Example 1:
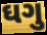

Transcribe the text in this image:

ઘગુ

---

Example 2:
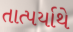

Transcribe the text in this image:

તાત્પર્યાથે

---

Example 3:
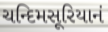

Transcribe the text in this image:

ચન્દિમસૂરિયાનં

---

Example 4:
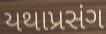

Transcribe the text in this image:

યથાપ્રસંગ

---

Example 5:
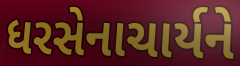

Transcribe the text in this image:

ધરસેનાચાર્યને